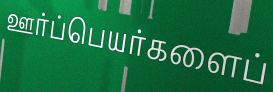
ஊர்ப்பெயர்களைப்